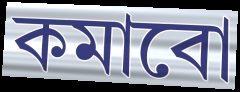
কমাবো